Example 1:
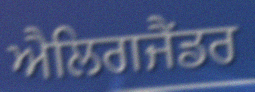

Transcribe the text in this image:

ਐਲਿਗਜੈਂਡਰ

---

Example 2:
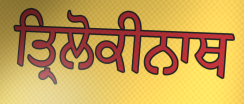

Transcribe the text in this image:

ਤ੍ਰਿਲੋਕੀਨਾਥ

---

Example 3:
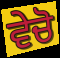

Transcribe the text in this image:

ਵੇਚੋ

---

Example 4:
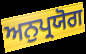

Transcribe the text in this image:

ਅਨੁਪ੍ਰਯੋਗ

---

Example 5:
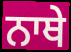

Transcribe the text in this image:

ਨਾਥੇ